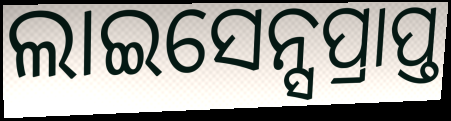
ଲାଇସେନ୍ସପ୍ରାପ୍ତ